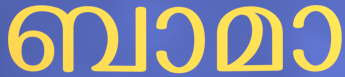
ബാമാ